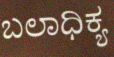
ಬಲಾಧಿಕ್ಯ